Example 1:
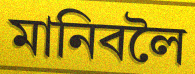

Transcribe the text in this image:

মানিবলৈ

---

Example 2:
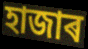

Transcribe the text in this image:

হাজাৰ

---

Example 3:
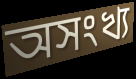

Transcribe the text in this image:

অসংখ্য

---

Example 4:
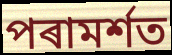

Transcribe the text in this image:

পৰামৰ্শত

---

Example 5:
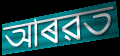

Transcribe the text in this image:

আৰৱত